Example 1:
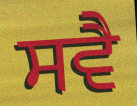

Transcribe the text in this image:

ਸਵੈ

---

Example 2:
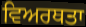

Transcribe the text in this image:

ਵਿਅਰਥਤਾ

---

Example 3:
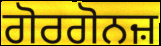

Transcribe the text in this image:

ਗੋਰਗੋਨਜ਼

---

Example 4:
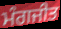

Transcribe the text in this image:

ਮੰਗਜੀਤ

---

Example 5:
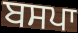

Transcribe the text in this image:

ਬਸਪਾ